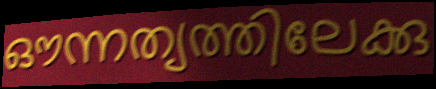
ഔന്നത്യത്തിലേക്കു